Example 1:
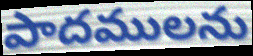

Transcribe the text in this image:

పాదములను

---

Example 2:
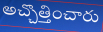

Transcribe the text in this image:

అచ్చొత్తించారు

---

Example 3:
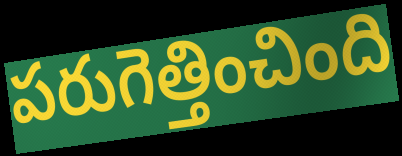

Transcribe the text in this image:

పరుగెత్తించింది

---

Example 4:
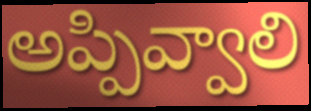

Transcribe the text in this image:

అప్పివ్వాలి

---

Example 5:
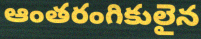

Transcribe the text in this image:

ఆంతరంగికులైన